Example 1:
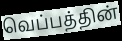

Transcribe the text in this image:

வெப்பத்தின்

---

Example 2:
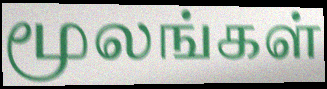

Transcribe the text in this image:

மூலங்கள்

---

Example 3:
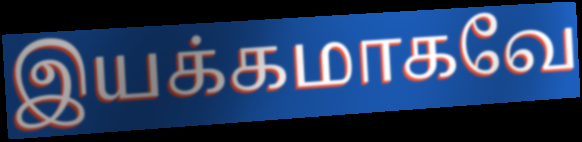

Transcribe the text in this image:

இயக்கமாகவே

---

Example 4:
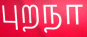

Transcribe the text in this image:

புறநா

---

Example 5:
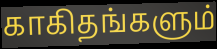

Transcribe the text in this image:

காகிதங்களும்